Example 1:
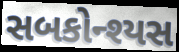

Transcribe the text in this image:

સબકોન્શ્યસ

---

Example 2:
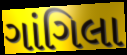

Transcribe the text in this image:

ગાંગિલા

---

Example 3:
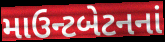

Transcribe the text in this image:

માઉન્ટબેટનનાં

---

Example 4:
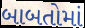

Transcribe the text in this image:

બાબતોમાં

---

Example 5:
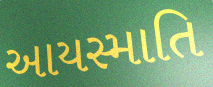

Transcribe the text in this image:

આયસ્માતિ